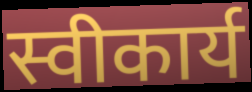
स्वीकार्य